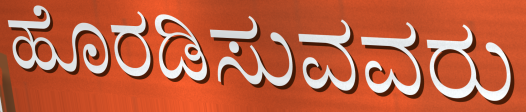
ಹೊರಡಿಸುವವರು